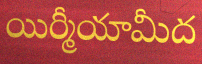
యిర్మీయామీద